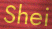
Shei